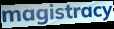
magistracy